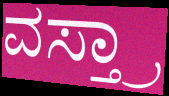
ವಸ್ತ್ರಾ